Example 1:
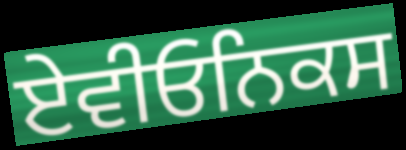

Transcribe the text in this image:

ਏਵੀਓਨਿਕਸ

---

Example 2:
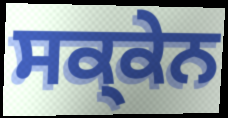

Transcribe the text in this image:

ਸਕ੍ਕੇਨ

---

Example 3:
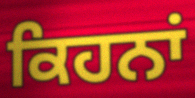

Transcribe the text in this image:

ਕਿਹਨਾਂ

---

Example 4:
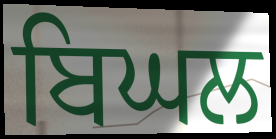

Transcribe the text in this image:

ਬਿਘਲ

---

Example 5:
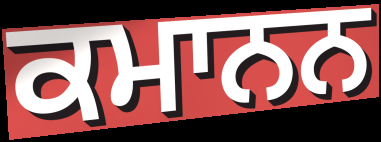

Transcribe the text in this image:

ਕਮਾਨਨ